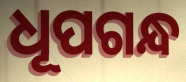
ଧୂପଗନ୍ଧ